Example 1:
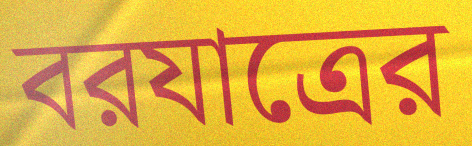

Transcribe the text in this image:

বরযাত্রের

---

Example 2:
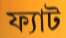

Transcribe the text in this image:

ফ্যাট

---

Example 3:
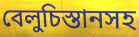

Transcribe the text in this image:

বেলুচিস্তানসহ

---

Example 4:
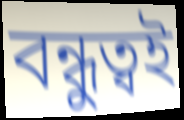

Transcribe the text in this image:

বন্ধুত্বই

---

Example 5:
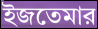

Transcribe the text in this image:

ইজতেমার